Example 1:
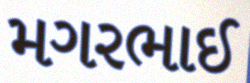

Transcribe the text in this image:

મગરભાઈ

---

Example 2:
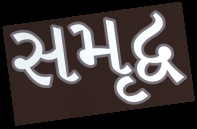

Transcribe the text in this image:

સમૃદ્વ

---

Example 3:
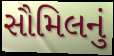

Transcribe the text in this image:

સૌમિલનું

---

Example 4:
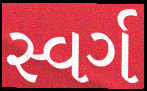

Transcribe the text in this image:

સ્વર્ગ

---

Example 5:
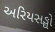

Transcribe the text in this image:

અરિયસઙ્ઘો